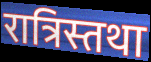
रात्रिस्तथा